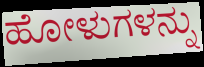
ಹೋಳುಗಳನ್ನು